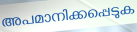
അപമാനിക്കപ്പെടുക